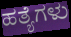
ಹತ್ಯೆಗಳು